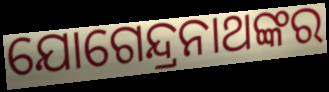
ଯୋଗେନ୍ଦ୍ରନାଥଙ୍କର